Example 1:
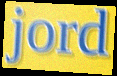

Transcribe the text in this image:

jord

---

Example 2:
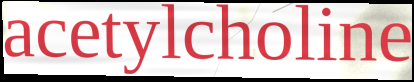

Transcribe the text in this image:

acetylcholine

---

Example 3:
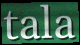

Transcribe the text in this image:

tala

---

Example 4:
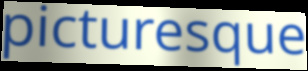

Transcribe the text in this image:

picturesque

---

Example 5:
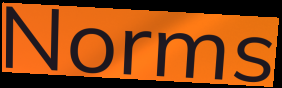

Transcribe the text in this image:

Norms